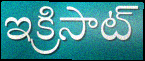
ఇక్రిసాట్